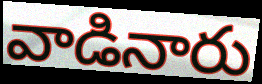
వాడినారు